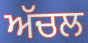
ਅੱਚਲ